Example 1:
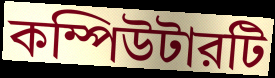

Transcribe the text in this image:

কম্পিউটারটি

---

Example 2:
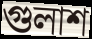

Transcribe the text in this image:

গুলাশ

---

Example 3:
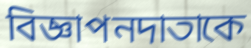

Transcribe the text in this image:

বিজ্ঞাপনদাতাকে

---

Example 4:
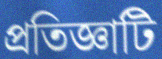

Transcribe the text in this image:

প্রতিজ্ঞাটি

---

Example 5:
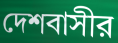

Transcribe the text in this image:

দেশবাসীর